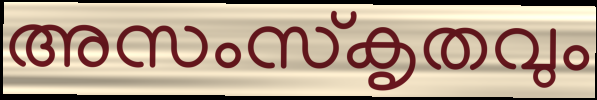
അസംസ്കൃതവും